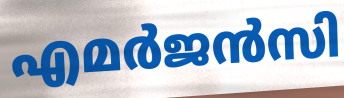
എമർജൻസി